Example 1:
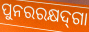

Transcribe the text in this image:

ପୁନରରକ୍ଷଦ୍‌ଗା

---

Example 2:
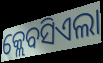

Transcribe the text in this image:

କ୍ଲେବସିଏଲା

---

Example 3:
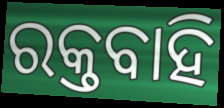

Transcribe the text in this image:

ରକ୍ତବାହି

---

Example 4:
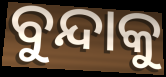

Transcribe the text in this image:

ବୁନ୍ଦାକୁ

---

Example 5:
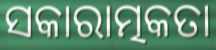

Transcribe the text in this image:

ସକାରାତ୍ମକତା